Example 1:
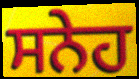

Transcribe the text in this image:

ਸਨੇਹ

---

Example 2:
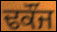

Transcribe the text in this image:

ਢਕੌਂਜ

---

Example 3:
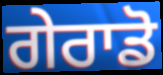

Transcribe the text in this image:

ਗੇਰਾਡੋ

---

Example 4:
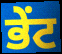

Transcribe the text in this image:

ਭੇਂਟ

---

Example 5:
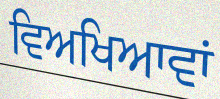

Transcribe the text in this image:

ਵਿਅਖਿਆਵਾਂ